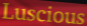
Luscious